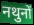
नथुनों